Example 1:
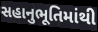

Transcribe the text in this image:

સહાનુભૂતિમાંથી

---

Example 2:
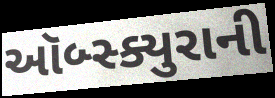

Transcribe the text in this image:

ઑબ્સ્ક્યુરાની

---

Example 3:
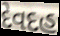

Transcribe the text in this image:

દેવદહ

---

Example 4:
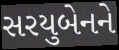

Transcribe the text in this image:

સરયુબેનને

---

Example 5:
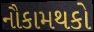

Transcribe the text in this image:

નૌકામથકો